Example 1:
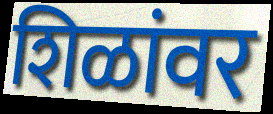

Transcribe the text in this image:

शिळांवर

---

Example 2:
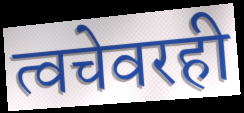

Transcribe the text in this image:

त्वचेवरही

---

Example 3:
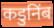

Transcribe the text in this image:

कडुनिंब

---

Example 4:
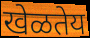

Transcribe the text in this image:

खेळतेय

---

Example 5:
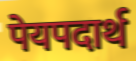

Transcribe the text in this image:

पेयपदार्थ